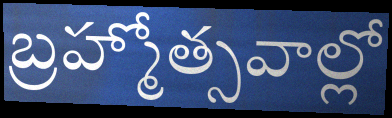
బ్రహ్మోత్సవాల్లో